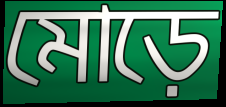
মোড়ে